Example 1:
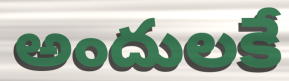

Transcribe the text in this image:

అందులకే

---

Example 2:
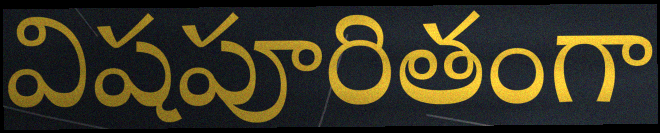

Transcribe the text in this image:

విషపూరితంగా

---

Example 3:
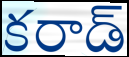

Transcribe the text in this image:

కరాడ్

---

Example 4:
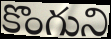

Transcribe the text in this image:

కొంగుని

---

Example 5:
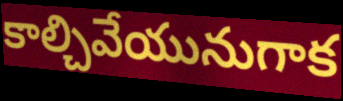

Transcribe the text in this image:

కాల్చివేయునుగాక